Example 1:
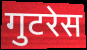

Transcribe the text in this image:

गुटरेस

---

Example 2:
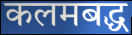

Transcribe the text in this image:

कलमबद्ध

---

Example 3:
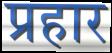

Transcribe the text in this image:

प्रहार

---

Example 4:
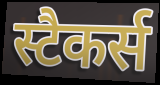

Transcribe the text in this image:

स्टैकर्स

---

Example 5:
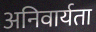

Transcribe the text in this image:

अनिवार्यता